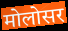
मोलोसर